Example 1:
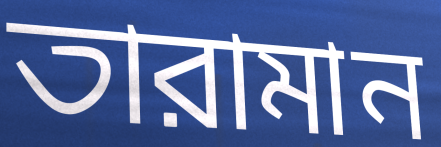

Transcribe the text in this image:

তারামান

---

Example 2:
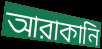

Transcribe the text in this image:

আরাকানি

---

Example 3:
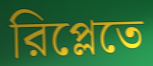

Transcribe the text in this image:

রিপ্লেতে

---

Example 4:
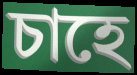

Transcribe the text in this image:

চাহে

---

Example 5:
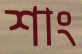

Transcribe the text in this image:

শাং